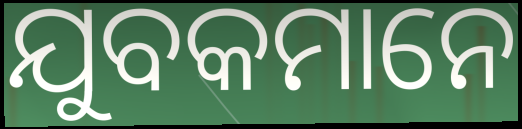
ଯୁବକମାନେ